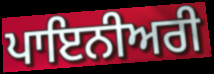
ਪਾਇਨੀਅਰੀ